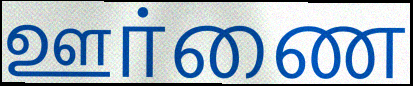
ஊர்ணை